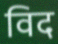
विद